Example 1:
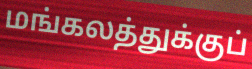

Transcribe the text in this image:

மங்கலத்துக்குப்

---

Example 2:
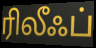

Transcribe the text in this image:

ரிலீஃப்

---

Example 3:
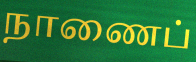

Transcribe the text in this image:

நாணைப்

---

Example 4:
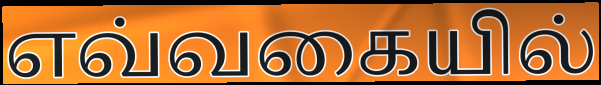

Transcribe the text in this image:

எவ்வகையில்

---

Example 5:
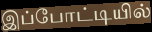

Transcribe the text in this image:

இப்போட்டியில்